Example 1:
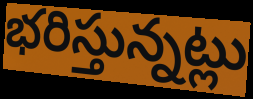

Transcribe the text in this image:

భరిస్తున్నట్లు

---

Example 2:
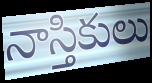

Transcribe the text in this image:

నాస్తికులు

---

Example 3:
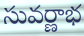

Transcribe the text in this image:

సువర్ణాభ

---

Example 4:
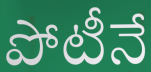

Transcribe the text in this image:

పోటీనే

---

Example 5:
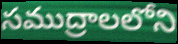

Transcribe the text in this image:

సముద్రాలలోని